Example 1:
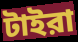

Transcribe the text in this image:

টাইরা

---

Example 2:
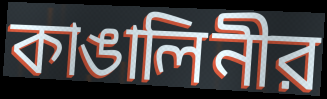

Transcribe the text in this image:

কাঙালিনীর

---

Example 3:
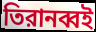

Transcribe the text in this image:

তিরানব্বই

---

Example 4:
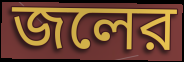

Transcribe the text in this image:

জলের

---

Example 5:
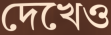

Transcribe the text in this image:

দেখেও